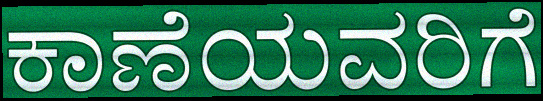
ಕಾಣೆಯವರಿಗೆ